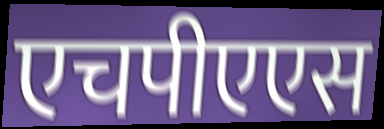
एचपीएएस